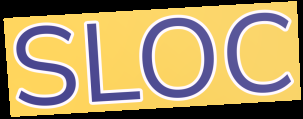
SLOC